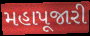
મહાપૂજારી